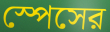
স্পেসের